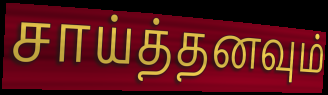
சாய்த்தனவும்